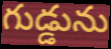
గుడ్డును